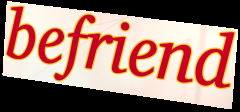
befriend